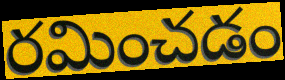
రమించడం